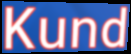
Kund